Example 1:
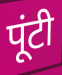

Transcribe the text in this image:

पूंटी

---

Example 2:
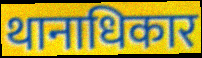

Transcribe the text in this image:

थानाधिकार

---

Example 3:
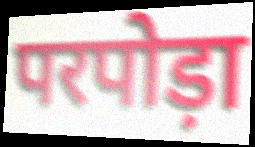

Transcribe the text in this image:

परपोड़ा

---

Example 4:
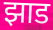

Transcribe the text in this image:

झाड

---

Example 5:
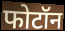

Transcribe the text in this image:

फोटॉन